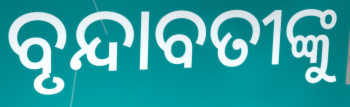
ବୃନ୍ଦାବତୀଙ୍କୁ